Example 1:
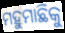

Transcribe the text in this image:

ମହୁମାଛିକୁ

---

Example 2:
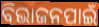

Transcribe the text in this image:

ବିଭାଜନପାଇଁ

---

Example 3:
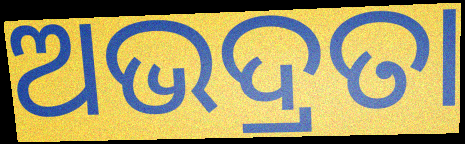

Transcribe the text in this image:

ଅଭଦ୍ରତା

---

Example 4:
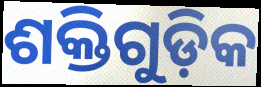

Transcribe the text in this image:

ଶକ୍ତିଗୁଡ଼ିକ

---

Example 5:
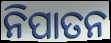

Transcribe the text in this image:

ନିପାତନ